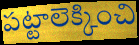
పట్టాలెక్కించి